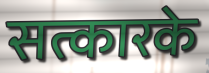
सत्कारके